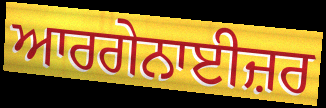
ਆਰਗੇਨਾਈਜ਼ਰ